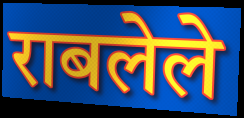
राबलेले